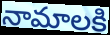
నామాలకి